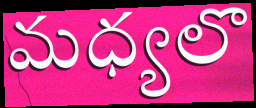
మధ్యలొ